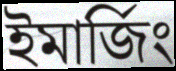
ইমার্জিং